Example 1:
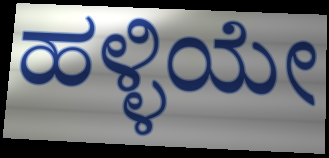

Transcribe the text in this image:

ಹಳ್ಳಿಯೇ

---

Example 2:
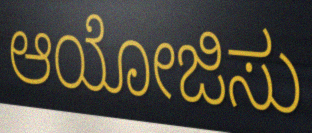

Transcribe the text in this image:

ಆಯೋಜಿಸು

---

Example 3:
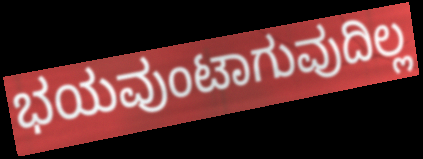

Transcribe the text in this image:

ಭಯವುಂಟಾಗುವುದಿಲ್ಲ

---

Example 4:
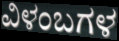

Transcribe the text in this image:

ವಿಳಂಬಗಳ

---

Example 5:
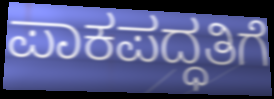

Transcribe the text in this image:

ಪಾಕಪದ್ಧತಿಗೆ